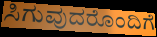
ಸಿಗುವುದರೊಂದಿಗೆ